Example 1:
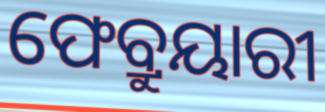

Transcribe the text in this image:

ଫେବ୍ରୁୟାରୀ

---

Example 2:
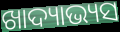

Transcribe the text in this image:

ଖାଦ୍ୟାଭ୍ୟସ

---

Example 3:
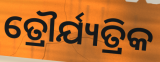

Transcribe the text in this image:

ତ୍ରୌର୍ଯ୍ୟତ୍ରିକ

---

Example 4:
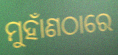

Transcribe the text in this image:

ମୁହାଁଣଠାରେ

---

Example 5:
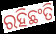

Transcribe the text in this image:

ରହିଛଂତି